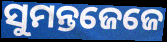
ସୁମନ୍ତଜେଜେ